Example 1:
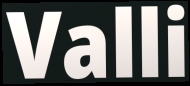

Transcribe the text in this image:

Valli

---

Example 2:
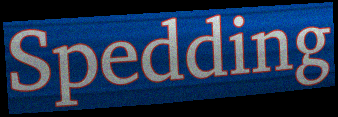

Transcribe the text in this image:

Spedding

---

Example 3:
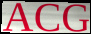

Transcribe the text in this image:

ACG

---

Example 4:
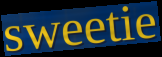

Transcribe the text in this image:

sweetie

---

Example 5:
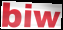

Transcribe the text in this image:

biw